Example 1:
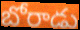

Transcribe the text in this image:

బోరాడు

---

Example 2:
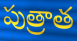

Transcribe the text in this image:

పుత్రాత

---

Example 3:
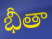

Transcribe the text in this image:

భీతా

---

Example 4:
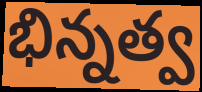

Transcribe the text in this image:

భిన్నత్వ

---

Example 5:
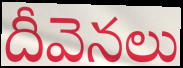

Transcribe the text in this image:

దీవెనలు